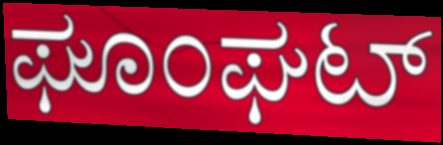
ಘೂಂಘಟ್